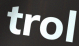
trol